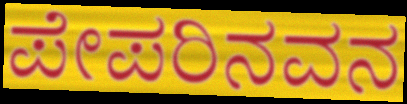
ಪೇಪರಿನವನ